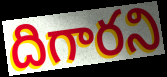
దిగారని